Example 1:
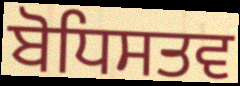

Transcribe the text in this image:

ਬੋਧਿਸਤਵ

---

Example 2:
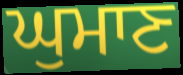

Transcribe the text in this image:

ਘੁਮਾਣ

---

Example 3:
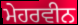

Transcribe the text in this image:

ਮੇਹਰਵੀਨ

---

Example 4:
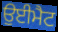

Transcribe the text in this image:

ਉਈਮੈਟ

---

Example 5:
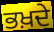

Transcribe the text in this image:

ਭਖ਼ਦੇ